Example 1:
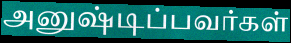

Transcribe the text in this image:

அனுஷ்டிப்பவர்கள்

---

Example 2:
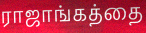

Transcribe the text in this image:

ராஜாங்கத்தை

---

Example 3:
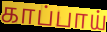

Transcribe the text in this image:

காப்பாய்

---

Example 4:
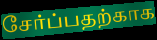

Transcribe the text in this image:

சேர்ப்பதற்காக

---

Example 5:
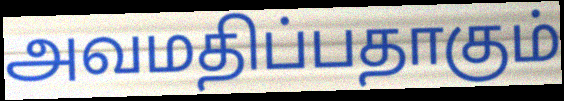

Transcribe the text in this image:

அவமதிப்பதாகும்